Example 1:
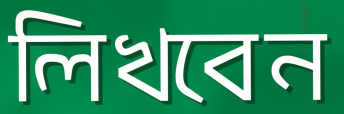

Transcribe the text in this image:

লিখবেন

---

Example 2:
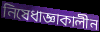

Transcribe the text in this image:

নিষেধাজ্ঞাকালীন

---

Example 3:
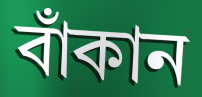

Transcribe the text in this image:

বাঁকান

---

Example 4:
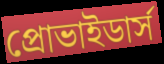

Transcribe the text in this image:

প্রোভাইডার্স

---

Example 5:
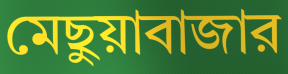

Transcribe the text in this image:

মেছুয়াবাজার